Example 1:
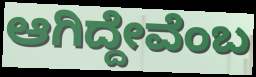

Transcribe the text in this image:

ಆಗಿದ್ದೇವೆಂಬ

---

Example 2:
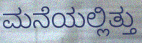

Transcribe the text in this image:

ಮನೆಯಲ್ಲಿತ್ತು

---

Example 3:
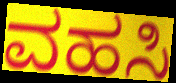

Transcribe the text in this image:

ವಹಸಿ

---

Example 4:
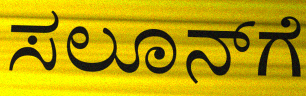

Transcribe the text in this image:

ಸಲೂನ್‍ಗೆ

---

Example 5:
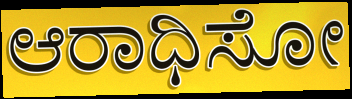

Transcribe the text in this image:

ಆರಾಧಿಸೋ